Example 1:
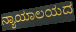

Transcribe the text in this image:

ನ್ಯಾಯಾಲಯದ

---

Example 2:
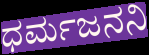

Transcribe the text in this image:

ಧರ್ಮಜನನಿ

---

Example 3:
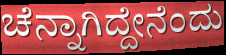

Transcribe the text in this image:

ಚೆನ್ನಾಗಿದ್ದೇನೆಂದು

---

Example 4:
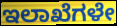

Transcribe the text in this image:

ಇಲಾಖೆಗಳೇ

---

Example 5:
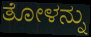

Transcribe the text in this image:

ತೋಳನ್ನು